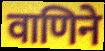
वाणिने